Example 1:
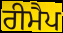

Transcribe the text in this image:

ਰੀਮੈਪ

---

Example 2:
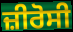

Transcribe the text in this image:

ਜ਼ੀਰੋਸੀ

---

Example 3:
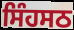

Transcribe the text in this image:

ਸਿੰਹਸਠ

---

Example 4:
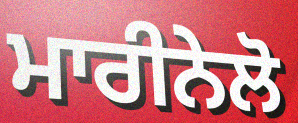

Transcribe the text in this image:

ਮਾਰੀਨੇਲੋ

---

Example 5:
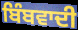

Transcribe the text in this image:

ਬਿੰਬਵਾਦੀ